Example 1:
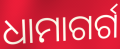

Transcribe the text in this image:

ଧାମାଗର୍ଗ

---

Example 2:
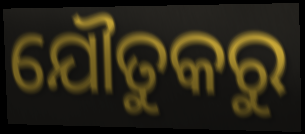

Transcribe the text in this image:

ଯୌତୁକରୁ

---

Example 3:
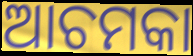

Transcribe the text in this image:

ଆଚମକା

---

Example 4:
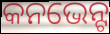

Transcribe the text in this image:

କନଭେନ୍ଟ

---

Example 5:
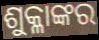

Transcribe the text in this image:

ଶୁକ୍ଳାଙ୍କର